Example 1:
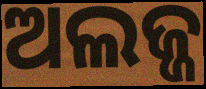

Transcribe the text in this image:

ଅଲଜ୍ଜ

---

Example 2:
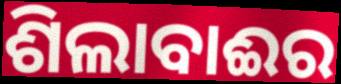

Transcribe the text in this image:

ଶିଲାବାଈର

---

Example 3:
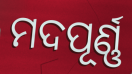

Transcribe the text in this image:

ମଦପୂର୍ଣ୍ଣ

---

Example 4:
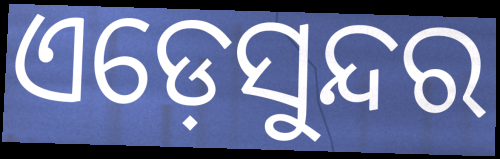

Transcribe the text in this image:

ଏଡ଼େସୁନ୍ଦର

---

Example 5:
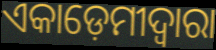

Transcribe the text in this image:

ଏକାଡ଼େମୀଦ୍ୱାରା